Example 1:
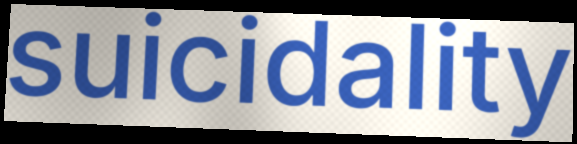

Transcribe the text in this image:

suicidality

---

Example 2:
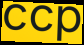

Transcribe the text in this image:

ccp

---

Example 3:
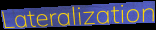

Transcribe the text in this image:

Lateralization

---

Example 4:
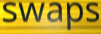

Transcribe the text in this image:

swaps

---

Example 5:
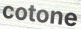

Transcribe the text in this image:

cotone